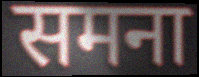
समना